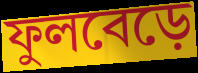
ফুলবেড়ে